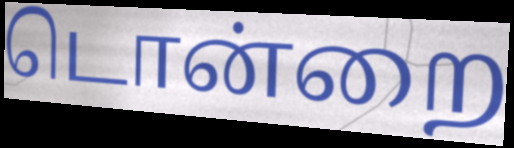
டொன்றை